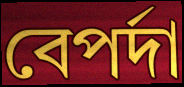
বেপর্দা